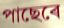
পাছেৰে